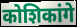
कोशिकांगे